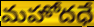
మహోదధే